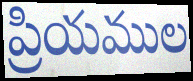
ప్రియముల